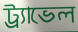
ট্র্যাভেল